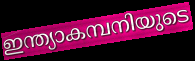
ഇന്ത്യാകമ്പനിയുടെ